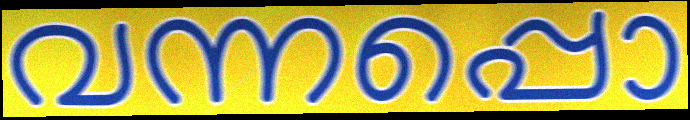
വന്നപ്പൊ